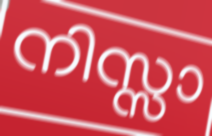
നിസ്സാ